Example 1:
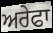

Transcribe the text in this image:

ਅਰੇਫਾ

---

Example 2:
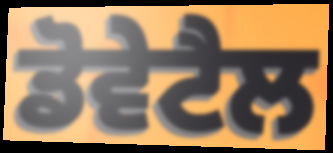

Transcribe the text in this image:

ਡੋਵੇਟੈਲ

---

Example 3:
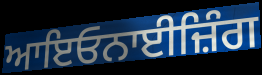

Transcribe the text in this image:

ਆਇਓਨਾਈਜ਼ਿੰਗ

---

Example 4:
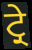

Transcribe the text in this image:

ਟ੍ਰੇ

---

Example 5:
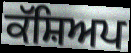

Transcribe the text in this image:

ਕੱਸ਼ਿਅਪ